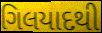
ગિલયાદથી